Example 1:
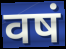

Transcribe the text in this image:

वषं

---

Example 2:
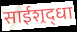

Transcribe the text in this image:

साईश्रद्धा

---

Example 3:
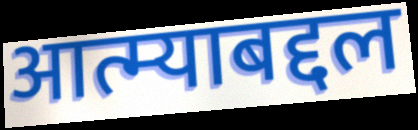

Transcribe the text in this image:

आत्म्याबद्दल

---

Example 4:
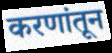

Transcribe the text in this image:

करणांतून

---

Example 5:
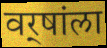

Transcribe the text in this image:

वर्षांला